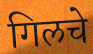
गिलचे